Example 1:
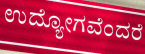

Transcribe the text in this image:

ಉದ್ಯೋಗವೆಂದರೆ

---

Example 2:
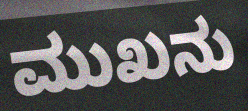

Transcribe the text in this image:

ಮುಖನು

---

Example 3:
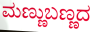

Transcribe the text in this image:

ಮಣ್ಣುಬಣ್ಣದ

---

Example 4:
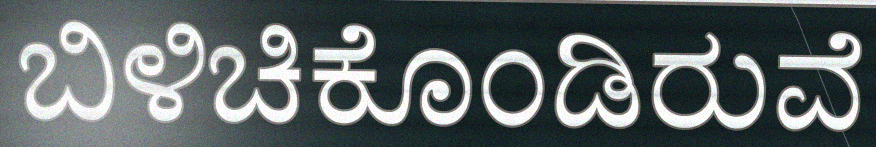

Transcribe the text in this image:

ಬಿಳಿಚಿಕೊಂಡಿರುವೆ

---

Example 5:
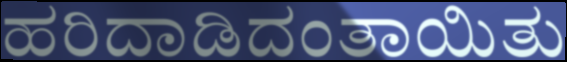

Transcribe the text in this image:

ಹರಿದಾಡಿದಂತಾಯಿತು